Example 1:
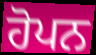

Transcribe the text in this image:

ਹੋਪਨ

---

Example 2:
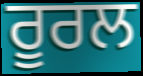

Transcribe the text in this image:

ਰੂਰਲ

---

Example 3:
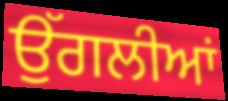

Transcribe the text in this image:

ਉੱਗਲੀਆਂ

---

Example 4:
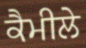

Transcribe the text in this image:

ਕੈਮੀਲੇ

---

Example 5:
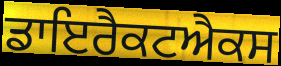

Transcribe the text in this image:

ਡਾਇਰੈਕਟਐਕਸ